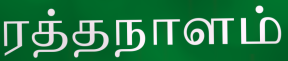
ரத்தநாளம்